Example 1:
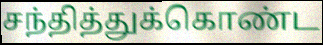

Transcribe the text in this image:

சந்தித்துக்கொண்ட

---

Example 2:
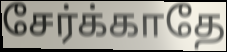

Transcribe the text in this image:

சேர்க்காதே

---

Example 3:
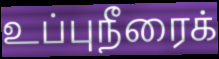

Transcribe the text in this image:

உப்புநீரைக்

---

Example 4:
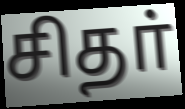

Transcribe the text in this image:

சிதர்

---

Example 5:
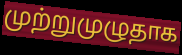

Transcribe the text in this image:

முற்றுமுழுதாக